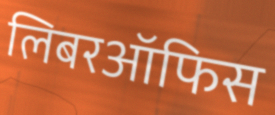
लिबरऑफिस